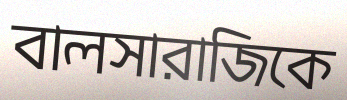
বালসারাজিকে